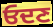
ਓਦਣ